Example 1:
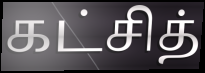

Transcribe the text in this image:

கட்சித்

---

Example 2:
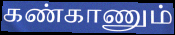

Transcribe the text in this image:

கண்காணும்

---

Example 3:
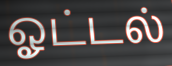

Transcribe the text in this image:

ஓட்டல்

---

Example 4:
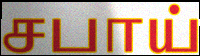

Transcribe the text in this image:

சபாய்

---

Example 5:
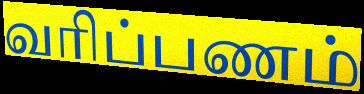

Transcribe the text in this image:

வரிப்பணம்